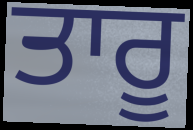
ਤਾਰੂ